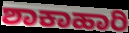
ಶಾಕಾಹಾರಿ